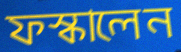
ফস্কালেন